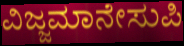
ವಿಜ್ಜಮಾನೇಸುಪಿ